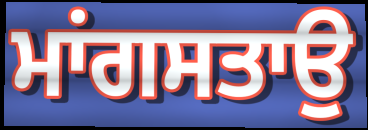
ਮਾਂਗਸਤਾਉ